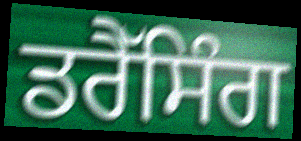
ਡਰੈੱਸਿੰਗ